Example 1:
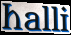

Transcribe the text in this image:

halli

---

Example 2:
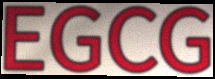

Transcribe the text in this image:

EGCG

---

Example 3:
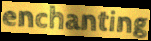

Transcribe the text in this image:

enchanting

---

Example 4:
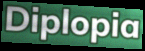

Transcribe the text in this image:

Diplopia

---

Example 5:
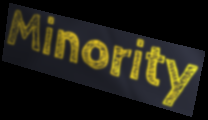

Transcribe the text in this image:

Minority